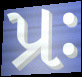
પ્રઃ